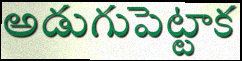
అడుగుపెట్టాక